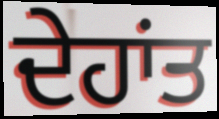
ਦੇਹਾਂਤ